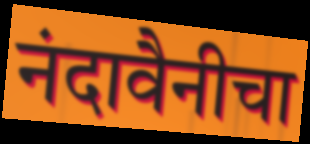
नंदावैनीचा